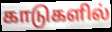
காடுகளில்